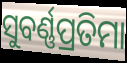
ସୁବର୍ଣ୍ଣପ୍ରତିମା